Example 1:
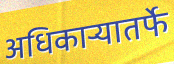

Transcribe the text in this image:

अधिकाऱ्यातर्फे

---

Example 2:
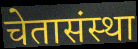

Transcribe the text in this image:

चेतासंस्था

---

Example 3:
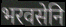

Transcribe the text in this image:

भरवसेनि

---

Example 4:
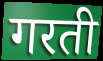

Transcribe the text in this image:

गरती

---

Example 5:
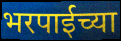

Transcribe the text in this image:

भरपाईच्या